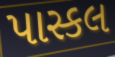
પાસ્કલ